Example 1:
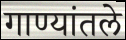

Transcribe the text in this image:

गाण्यांतले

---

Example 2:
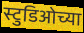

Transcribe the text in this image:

स्टुडिओच्या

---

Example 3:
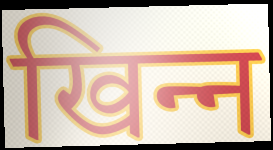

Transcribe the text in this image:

खिन्‍न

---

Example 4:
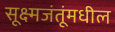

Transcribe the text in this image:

सूक्ष्मजंतूंमधील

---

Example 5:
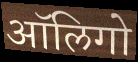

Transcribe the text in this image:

ऑलिगो